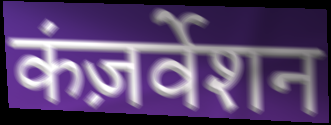
कंज़र्वेशन